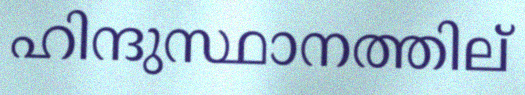
ഹിന്ദുസ്ഥാനത്തില്